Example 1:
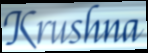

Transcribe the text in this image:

Krushna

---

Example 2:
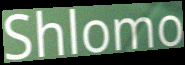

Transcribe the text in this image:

Shlomo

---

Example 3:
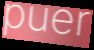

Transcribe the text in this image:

puer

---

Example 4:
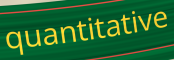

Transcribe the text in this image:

quantitative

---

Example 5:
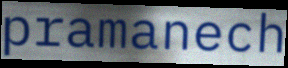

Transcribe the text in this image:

pramanech